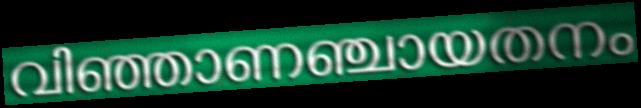
വിഞ്ഞാണഞ്ചായതനം